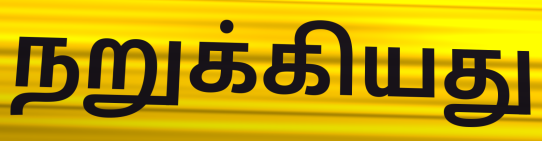
நறுக்கியது